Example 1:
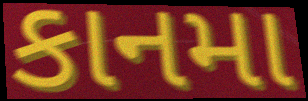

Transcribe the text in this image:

કાનમા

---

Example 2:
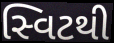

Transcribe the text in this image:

સ્વિટથી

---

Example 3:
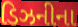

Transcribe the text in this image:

ડિઝનીના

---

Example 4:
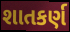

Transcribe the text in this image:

શાતકર્ણ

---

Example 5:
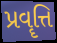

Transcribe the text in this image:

પ્રવૄત્તિ